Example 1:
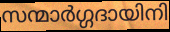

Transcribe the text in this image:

സന്മാർഗ്ഗദായിനി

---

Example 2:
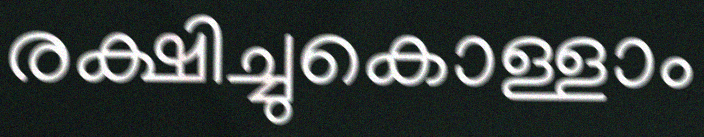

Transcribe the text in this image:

രക്ഷിച്ചുകൊള്ളാം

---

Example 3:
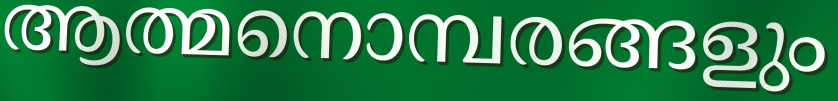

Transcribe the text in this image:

ആത്മനൊമ്പരങ്ങളും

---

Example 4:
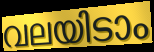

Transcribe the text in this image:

വലയിടാം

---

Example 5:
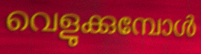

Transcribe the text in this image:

വെളുക്കുമ്പോൾ